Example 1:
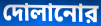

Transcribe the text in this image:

দোলানোর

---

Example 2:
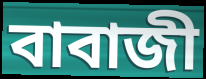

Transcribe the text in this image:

বাবাজী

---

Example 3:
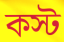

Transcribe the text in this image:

কস্ট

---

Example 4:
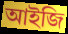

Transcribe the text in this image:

আইজি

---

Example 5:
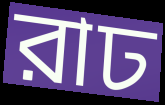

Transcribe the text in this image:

রাঢ